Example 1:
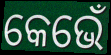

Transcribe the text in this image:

କେଭେଁ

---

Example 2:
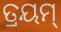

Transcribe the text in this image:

ତ୍ରୟମ୍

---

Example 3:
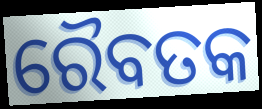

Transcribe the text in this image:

ରୈବତକ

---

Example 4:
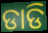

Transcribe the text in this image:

ଡାଡି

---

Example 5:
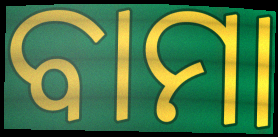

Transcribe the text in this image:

ବାମା